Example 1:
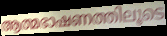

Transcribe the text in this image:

ആത്മഭാഷണത്തിലൂടെ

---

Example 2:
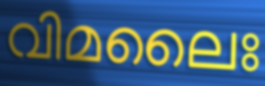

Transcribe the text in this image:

വിമലൈഃ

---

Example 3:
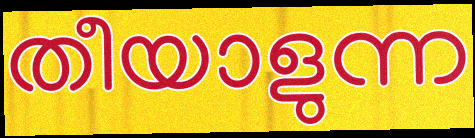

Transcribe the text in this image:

തീയാളുന്ന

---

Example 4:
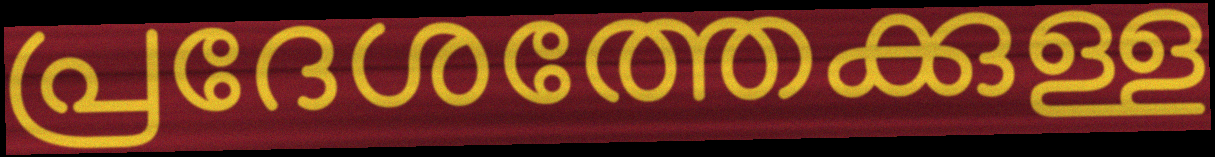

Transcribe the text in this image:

പ്രദേശത്തേക്കുള്ള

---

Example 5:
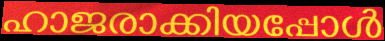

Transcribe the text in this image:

ഹാജരാക്കിയപ്പോൾ